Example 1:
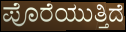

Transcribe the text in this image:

ಪೊರೆಯುತ್ತಿದೆ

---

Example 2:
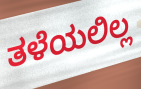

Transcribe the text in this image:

ತಳೆಯಲಿಲ್ಲ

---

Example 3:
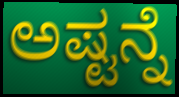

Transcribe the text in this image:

ಅಷ್ಟನ್ನೆ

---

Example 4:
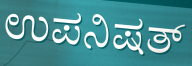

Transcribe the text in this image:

ಉಪನಿಷತ್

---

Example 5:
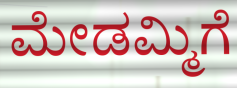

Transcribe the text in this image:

ಮೇಡಮ್ಮಿಗೆ